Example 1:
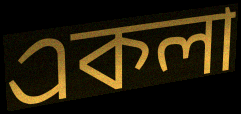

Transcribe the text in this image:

একলা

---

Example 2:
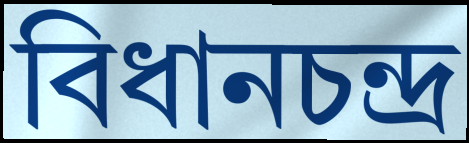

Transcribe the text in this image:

বিধানচন্দ্র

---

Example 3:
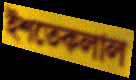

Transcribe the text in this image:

ইশতেকলাল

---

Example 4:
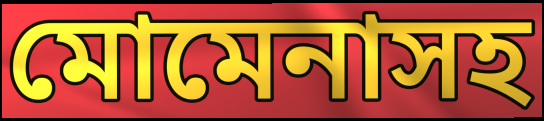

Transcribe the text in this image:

মোমেনাসহ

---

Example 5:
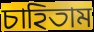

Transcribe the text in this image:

চাহিতাম